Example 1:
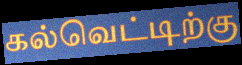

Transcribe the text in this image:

கல்வெட்டிற்கு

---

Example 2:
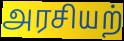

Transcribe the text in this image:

அரசியற்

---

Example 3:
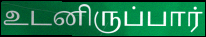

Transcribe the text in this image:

உடனிருப்பார்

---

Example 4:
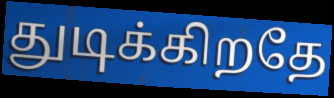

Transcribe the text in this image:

துடிக்கிறதே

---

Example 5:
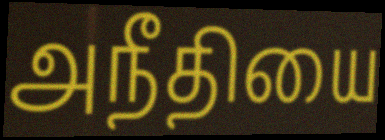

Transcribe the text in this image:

அநீதியை